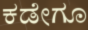
ಕಡೇಗೂ